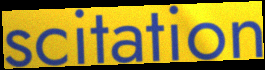
scitation